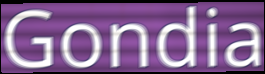
Gondia